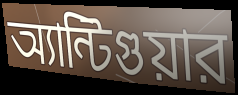
অ্যান্টিগুয়ার